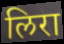
लिरा